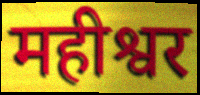
महीश्वर